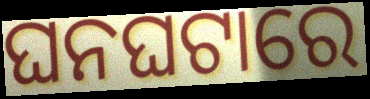
ଘନଘଟାରେ